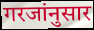
गरजांनुसार